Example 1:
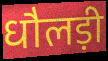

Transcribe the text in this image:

धौलड़ी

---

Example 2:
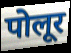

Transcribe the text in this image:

पोलूर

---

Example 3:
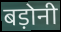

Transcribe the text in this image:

बड़ोनी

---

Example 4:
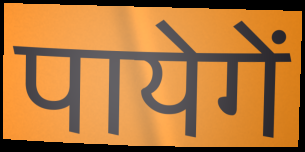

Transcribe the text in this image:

पायेगें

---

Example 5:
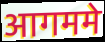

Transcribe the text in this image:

आगममे